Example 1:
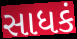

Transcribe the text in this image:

સાધકં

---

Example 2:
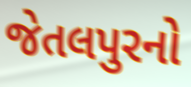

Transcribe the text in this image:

જેતલપુરનો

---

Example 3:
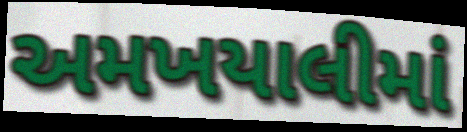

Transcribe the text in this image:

અમખયાલીમાં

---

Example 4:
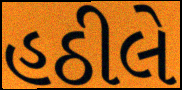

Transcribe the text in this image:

હઠીલે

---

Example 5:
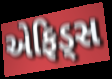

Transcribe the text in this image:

એફિડ્સ